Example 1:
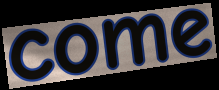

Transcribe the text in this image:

come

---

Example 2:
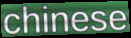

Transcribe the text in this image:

chinese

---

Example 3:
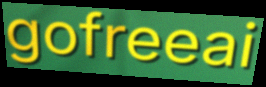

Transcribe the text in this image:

gofreeai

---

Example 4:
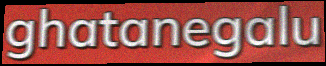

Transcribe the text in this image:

ghatanegalu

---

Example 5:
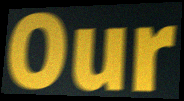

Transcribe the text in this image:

Our